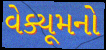
વેક્યૂમનો